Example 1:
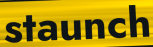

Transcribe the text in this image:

staunch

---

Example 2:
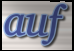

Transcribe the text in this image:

auf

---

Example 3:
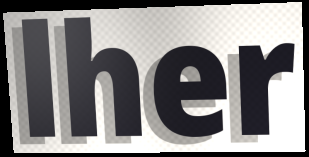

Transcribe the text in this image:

lher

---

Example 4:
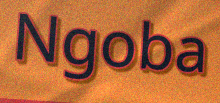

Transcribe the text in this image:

Ngoba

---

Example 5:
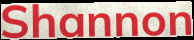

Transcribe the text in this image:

Shannon